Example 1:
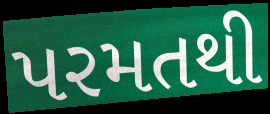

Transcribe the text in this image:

પરમતથી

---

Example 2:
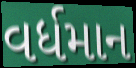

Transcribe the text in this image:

વર્ધમાન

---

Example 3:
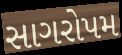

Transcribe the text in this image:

સાગરોપમ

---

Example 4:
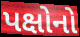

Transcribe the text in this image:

પક્ષોનો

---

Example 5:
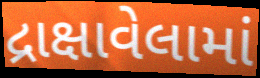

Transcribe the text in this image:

દ્રાક્ષાવેલામાં